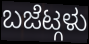
ಬಜೆಟ್ಗಳು